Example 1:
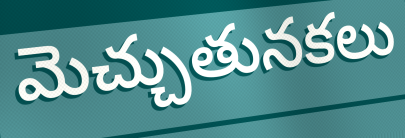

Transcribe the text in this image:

మెచ్చుతునకలు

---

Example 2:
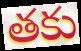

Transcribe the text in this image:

తకు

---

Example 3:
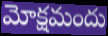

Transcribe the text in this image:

మోక్షమందు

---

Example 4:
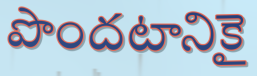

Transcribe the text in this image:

పొందటానికై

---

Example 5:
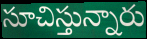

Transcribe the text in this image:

సూచిస్తున్నారు